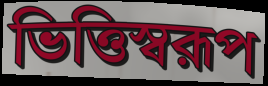
ভিত্তিস্বরূপ